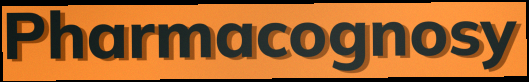
Pharmacognosy